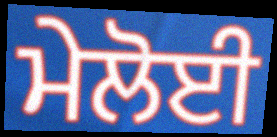
ਮੇਲੋਈ